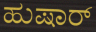
ಹುಷಾರ್